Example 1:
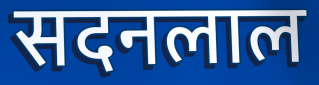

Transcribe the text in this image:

सदनलाल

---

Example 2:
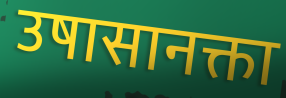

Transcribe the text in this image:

उषासानक्ता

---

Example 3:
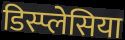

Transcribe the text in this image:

डिस्प्लेसिया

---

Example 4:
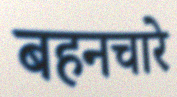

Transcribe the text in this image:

बहनचारे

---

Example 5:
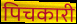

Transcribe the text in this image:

पिचकारी